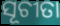
ସୂଚୀତା